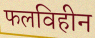
फलविहीन